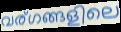
വര്ഗങ്ങളിലെ